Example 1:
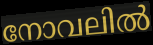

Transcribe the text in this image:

നോവലിൽ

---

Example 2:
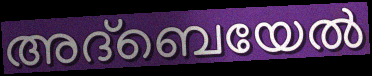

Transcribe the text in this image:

അദ്ബെയേൽ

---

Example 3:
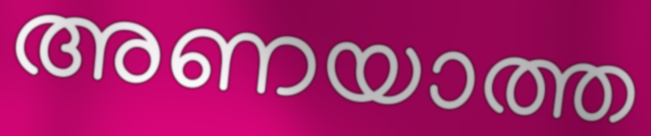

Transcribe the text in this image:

അണയാത്ത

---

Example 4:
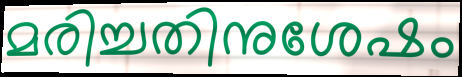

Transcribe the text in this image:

മരിച്ചതിനുശേഷം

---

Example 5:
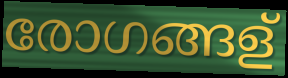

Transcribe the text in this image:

രോഗങ്ങള്